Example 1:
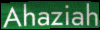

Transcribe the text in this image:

Ahaziah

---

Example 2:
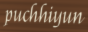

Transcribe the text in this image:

puchhiyun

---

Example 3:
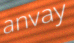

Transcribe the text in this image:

anvay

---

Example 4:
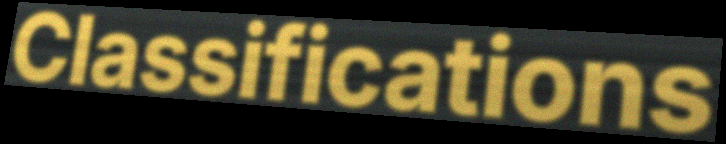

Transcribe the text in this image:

Classifications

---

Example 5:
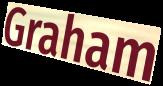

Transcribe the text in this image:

Graham